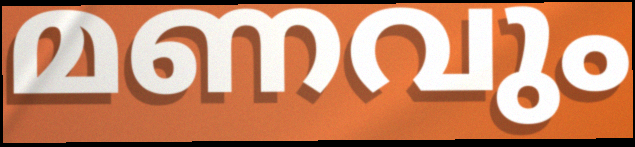
മണവും